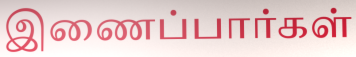
இணைப்பார்கள்